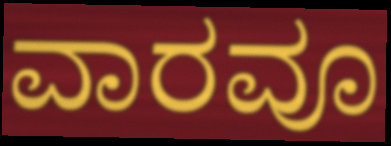
ವಾರವೂ